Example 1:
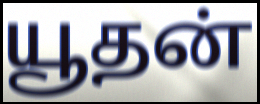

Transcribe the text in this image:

யூதன்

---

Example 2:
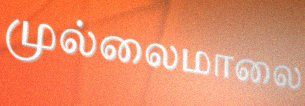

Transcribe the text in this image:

முல்லைமாலை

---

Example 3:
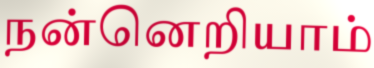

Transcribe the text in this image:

நன்னெறியாம்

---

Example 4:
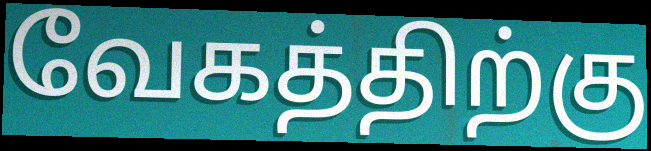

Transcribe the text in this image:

வேகத்திற்கு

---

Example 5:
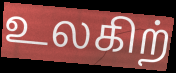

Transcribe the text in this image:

உலகிற்